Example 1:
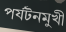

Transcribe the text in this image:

পর্যটনমুখী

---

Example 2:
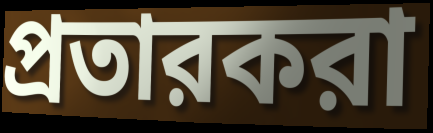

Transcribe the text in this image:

প্রতারকরা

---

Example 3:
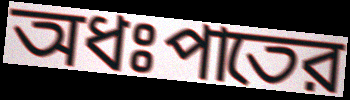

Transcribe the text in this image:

অধঃপাতের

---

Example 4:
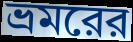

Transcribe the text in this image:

ভ্রমরের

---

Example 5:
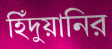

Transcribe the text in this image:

হিঁদুয়ানির